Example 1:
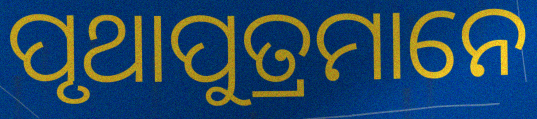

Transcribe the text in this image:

ପୃଥାପୁତ୍ରମାନେ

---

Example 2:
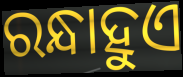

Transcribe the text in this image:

ରନ୍ଧାହୁଏ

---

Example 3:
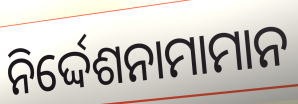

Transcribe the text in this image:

ନିର୍ଦ୍ଦେଶନାମାମାନ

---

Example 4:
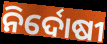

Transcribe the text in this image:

ନିର୍ଦୋଷୀ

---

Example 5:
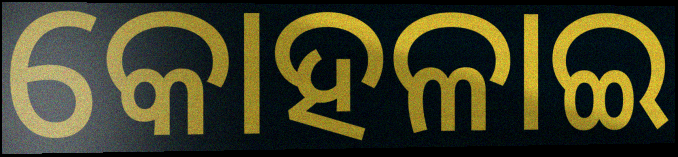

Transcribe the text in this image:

କୋହଳାଇ